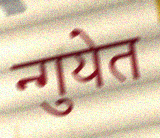
न्गुयेत